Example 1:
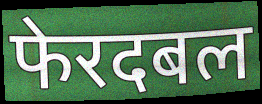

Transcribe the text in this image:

फेरदबल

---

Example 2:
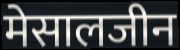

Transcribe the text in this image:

मेसालजीन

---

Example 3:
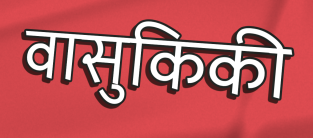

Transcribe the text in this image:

वासुकिकी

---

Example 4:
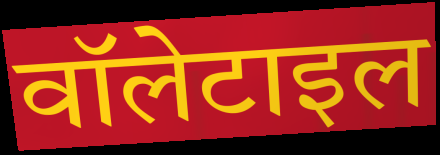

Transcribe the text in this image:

वॉलेटाइल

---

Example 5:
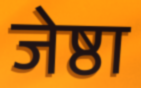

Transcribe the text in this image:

जेष्ठा